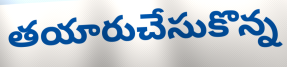
తయారుచేసుకొన్న